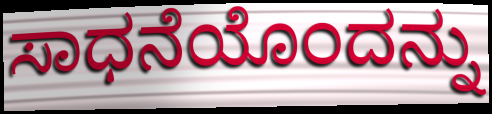
ಸಾಧನೆಯೊಂದನ್ನು